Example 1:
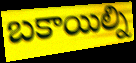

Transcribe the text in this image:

బకాయిల్ని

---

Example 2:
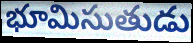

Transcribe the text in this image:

భూమిసుతుడు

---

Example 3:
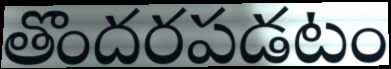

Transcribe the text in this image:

తొందరపడటం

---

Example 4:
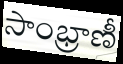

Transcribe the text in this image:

సాంభ్రాణీ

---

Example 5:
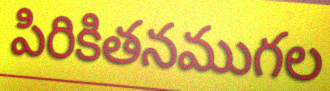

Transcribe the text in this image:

పిరికితనముగల